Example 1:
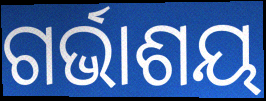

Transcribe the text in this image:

ଗର୍ଭାଶୟ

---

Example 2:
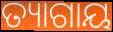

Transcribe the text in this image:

ତ୍ୟାଗାୟ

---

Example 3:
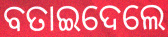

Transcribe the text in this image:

ବତାଇଦେଲେ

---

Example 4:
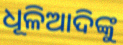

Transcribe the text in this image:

ଧୂଳିଆଦିଙ୍କୁ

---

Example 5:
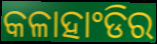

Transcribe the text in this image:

କଳାହାଂଡିର